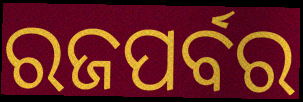
ରଜପର୍ବର